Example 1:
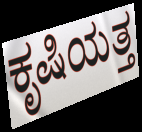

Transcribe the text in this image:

ಕೃಷಿಯತ್ತ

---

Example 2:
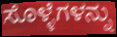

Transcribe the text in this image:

ಸೊಳ್ಳೆಗಳನ್ನು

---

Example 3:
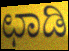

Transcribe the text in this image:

ಛಾಡಿ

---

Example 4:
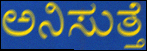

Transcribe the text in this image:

ಅನಿಸುತ್ತೆ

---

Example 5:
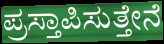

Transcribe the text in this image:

ಪ್ರಸ್ತಾಪಿಸುತ್ತೇನೆ